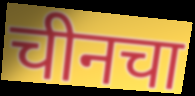
चीनचा